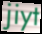
jiyt